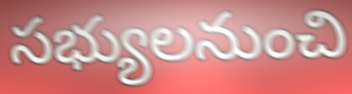
సభ్యులనుంచి